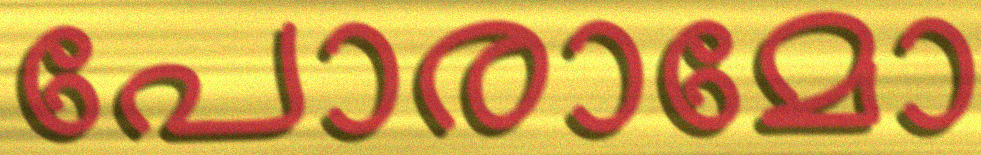
പോരാമോ